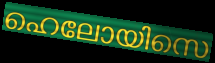
ഹെലോയിസെ